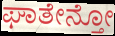
ಘಾತೇನ್ತೋ